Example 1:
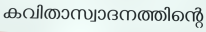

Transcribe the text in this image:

കവിതാസ്വാദനത്തിന്റെ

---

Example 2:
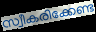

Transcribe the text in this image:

സ്വീകരിക്കേണ്ട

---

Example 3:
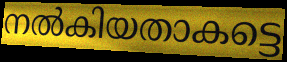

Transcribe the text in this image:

നൽകിയതാകട്ടെ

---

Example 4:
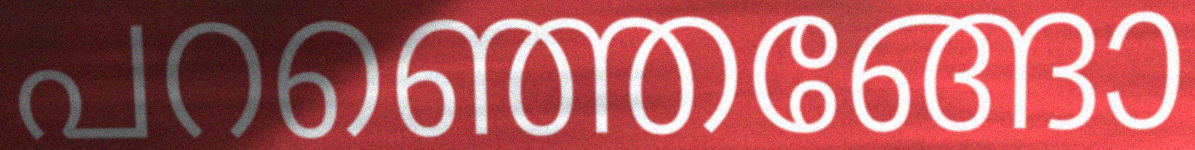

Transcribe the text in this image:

പറഞ്ഞെങ്ങോ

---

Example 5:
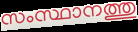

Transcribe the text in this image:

സംസ്ഥാനത്തു